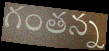
గంతన్న